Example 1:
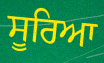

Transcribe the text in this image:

ਸੂਰਿਆ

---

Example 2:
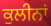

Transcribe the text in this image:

ਕੁਲੀਨਾਂ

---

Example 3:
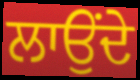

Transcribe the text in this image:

ਲਾਉਂਦੇ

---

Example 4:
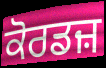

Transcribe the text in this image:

ਕੋਰਡਜ਼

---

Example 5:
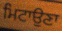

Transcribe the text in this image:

ਮਿਟਾਉਣਾ